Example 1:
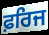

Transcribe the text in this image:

ਫ਼ਰਿਜ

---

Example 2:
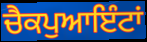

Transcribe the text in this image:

ਚੈਕਪੁਆਇੰਟਾਂ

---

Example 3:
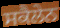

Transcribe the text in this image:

ਸਕੈਲੇਨ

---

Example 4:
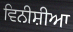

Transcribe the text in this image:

ਵਿਨੀਸ਼ੀਆ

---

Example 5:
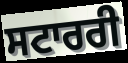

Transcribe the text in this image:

ਸਟਾਰਰੀ